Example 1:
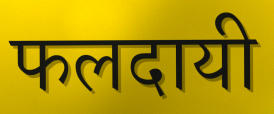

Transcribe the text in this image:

फलदायी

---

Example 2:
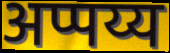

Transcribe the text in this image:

अप्पय्य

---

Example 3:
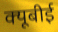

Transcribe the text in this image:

क्यूबीई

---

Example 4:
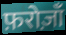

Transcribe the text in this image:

फ़रोज़ाँ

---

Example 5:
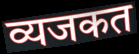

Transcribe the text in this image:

व्यजकत